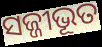
ସଜ୍ଜୀଭୂତ